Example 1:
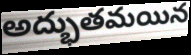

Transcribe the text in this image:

అద్భుతమయిన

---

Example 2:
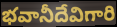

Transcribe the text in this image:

భవానీదేవిగారి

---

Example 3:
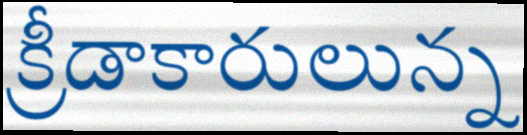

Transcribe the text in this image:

క్రీడాకారులున్న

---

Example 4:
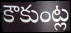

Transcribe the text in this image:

కౌకుంట్ల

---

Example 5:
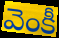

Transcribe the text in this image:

వెంకీ